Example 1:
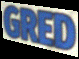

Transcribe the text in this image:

GRED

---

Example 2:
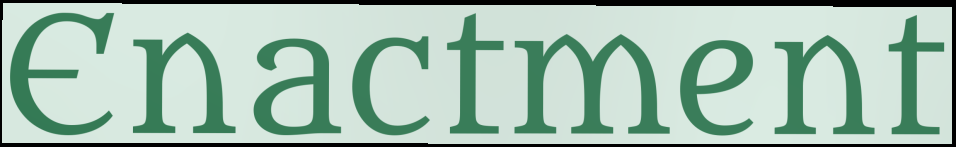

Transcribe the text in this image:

Enactment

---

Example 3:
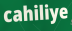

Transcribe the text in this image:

cahiliye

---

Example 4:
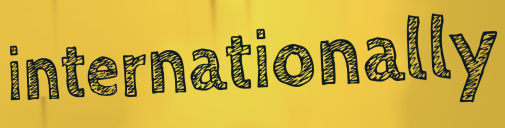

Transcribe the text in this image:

internationally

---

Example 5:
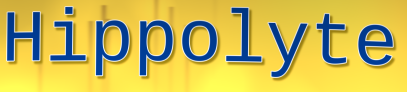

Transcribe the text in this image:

Hippolyte